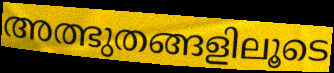
അത്ഭുതങ്ങളിലൂടെ